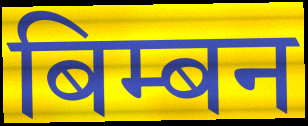
बिम्बन